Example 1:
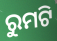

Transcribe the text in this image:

ରୁମଟି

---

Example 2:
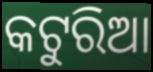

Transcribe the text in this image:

କଟୁରିଆ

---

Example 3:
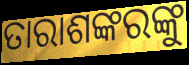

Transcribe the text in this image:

ତାରାଶଙ୍କରଙ୍କୁ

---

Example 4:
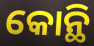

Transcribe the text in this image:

କୋନ୍ଥି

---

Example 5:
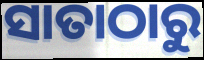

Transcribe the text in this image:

ସାତାଠାରୁ